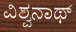
ವಿಶ್ವನಾಥ್